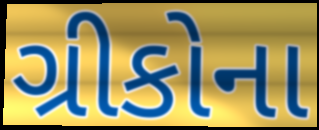
ગ્રીકોના